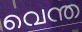
വെന്ത